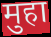
मुहा